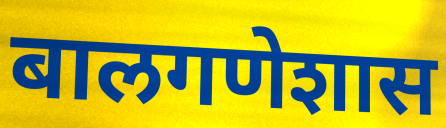
बालगणेशास